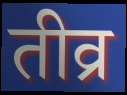
तीव्र